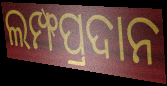
ଲମ୍ଫପ୍ରଦାନ